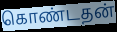
கொண்டதன்